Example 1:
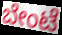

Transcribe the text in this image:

ಬೇಂಟೆ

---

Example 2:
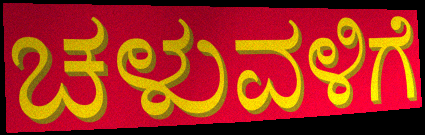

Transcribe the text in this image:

ಚಳುವಳಿಗೆ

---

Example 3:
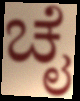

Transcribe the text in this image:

ಚೈ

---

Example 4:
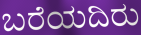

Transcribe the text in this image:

ಬರೆಯದಿರು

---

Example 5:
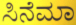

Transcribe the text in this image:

ಸಿನೆಮಾ